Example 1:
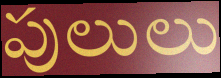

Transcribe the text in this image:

పులులు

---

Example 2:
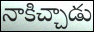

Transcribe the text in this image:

నాకిచ్చాడు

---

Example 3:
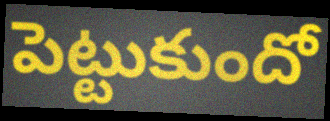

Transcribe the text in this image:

పెట్టుకుందో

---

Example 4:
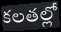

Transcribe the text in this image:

కలతల్లో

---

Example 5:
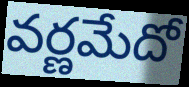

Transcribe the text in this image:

వర్ణమేదో